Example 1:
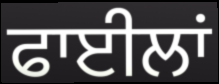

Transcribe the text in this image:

ਫਾਈਲਾਂ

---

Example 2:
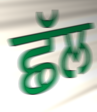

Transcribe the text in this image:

ਛੱਲ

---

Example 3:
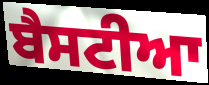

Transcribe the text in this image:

ਬੈਸਟੀਆ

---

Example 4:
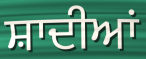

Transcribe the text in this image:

ਸ਼ਾਦੀਆਂ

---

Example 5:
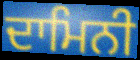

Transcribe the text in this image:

ਦਾਮਿਨੀ